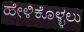
ಹೇಳಿಕೊಳ್ಳಲು